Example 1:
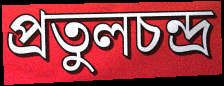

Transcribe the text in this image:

প্রতুলচন্দ্র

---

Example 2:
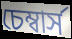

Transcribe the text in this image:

চেম্বার্স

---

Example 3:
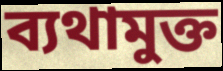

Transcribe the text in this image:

ব্যথামুক্ত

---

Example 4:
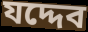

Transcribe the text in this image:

যদ্দেব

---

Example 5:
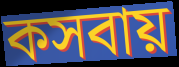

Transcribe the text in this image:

কসবায়